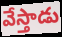
వేస్తాడు